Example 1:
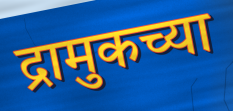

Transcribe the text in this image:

द्रामुकच्या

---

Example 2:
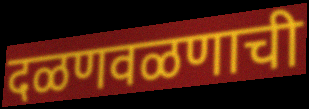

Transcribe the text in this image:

दळणवळणाची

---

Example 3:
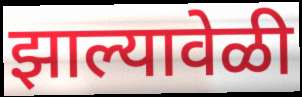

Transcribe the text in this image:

झाल्यावेळी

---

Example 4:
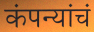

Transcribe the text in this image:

कंपन्यांचं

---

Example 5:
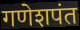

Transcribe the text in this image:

गणेशपंत